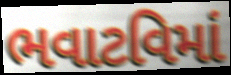
ભવાટવિમાં